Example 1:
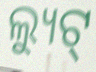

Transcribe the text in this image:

ଲ୍ୟୁଟ୍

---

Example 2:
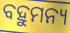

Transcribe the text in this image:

ବହୁମନ୍ୟ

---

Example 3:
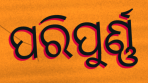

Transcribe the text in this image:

ପରିପୁର୍ଣ୍ଣ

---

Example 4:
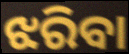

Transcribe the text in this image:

ଝରିବା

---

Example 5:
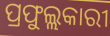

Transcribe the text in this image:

ପ୍ରଫୁଲ୍ଲକାରୀ